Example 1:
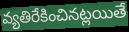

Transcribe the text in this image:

వ్యతిరేకించినట్లయితే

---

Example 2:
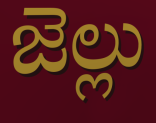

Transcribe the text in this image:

జెల్లు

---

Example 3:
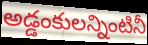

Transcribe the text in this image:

అడ్డంకులన్నింటినీ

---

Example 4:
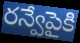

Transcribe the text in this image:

రన్వేపైకి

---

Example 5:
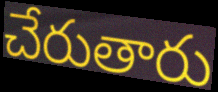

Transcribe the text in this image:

చేరుతారు